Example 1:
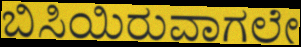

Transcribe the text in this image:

ಬಿಸಿಯಿರುವಾಗಲೇ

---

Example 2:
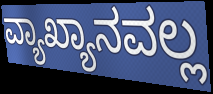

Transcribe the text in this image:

ವ್ಯಾಖ್ಯಾನವಲ್ಲ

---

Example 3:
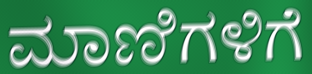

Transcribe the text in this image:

ಮಾಣಿಗಳಿಗೆ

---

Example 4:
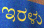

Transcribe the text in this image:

ಇರಳು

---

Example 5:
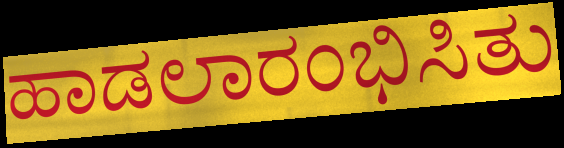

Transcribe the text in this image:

ಹಾಡಲಾರಂಭಿಸಿತು